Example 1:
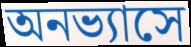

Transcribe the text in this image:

অনভ্যাসে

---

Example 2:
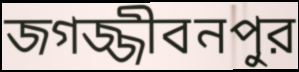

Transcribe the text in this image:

জগজ্জীবনপুর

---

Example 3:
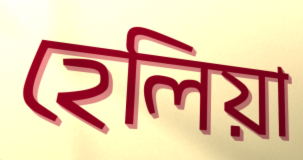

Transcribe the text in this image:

হেলিয়া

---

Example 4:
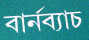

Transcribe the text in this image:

বার্নব্যাচ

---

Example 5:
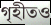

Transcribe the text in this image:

গৃহীতও